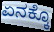
ಏನಕ್ಕೊ